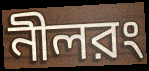
নীলরং